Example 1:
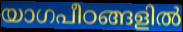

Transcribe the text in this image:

യാഗപീഠങ്ങളിൽ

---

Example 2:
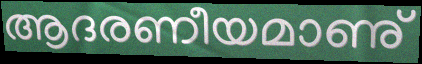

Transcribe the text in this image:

ആദരണീയമാണു്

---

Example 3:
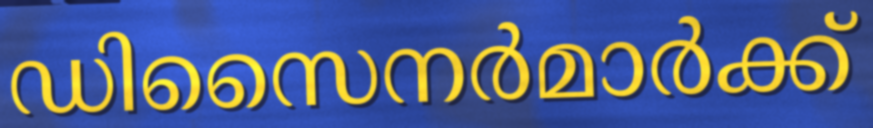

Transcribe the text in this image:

ഡിസൈനർമാർക്ക്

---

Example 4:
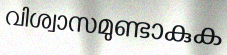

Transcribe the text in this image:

വിശ്വാസമുണ്ടാകുക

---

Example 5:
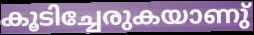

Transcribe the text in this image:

കൂടിച്ചേരുകയാണു്